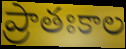
ప్రాతఃకాల